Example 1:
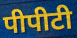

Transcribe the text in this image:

पीपीटी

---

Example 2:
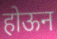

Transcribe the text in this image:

होऊन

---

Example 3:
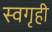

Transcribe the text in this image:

स्वगृही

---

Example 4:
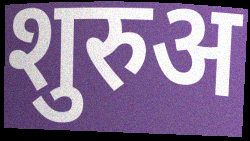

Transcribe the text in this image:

शुरुअ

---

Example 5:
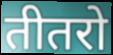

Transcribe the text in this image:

तीतरो